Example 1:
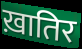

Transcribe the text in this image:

ख़ातिर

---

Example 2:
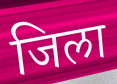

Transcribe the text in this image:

जिला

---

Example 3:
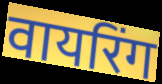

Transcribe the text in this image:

वायरिंग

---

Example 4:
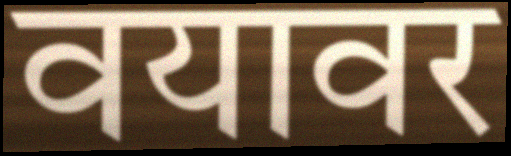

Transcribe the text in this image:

वयावर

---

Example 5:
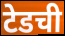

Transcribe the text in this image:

टेडची